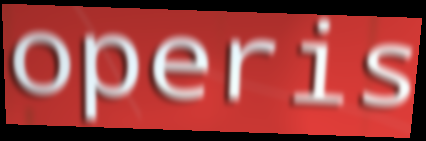
operis